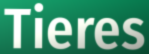
Tieres